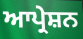
ਆਪ੍ਰੇਸ਼ਨ